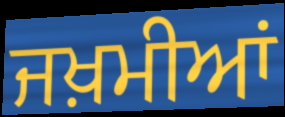
ਜਖ਼ਮੀਆਂ